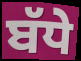
ਬੱਧੇ